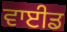
ਵਾਈਡ